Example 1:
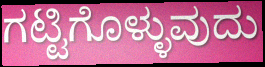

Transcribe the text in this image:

ಗಟ್ಟಿಗೊಳ್ಳುವುದು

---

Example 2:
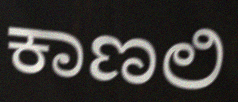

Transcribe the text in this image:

ಕಾಣಲಿ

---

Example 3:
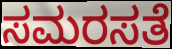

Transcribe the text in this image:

ಸಮರಸತೆ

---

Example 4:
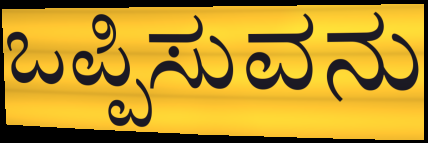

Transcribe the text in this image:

ಒಪ್ಪಿಸುವನು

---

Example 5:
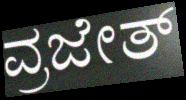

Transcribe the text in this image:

ವ್ರಜೇತ್